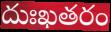
దుఃఖతరం